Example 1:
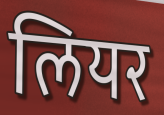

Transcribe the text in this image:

लियर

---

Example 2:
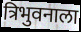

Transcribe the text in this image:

त्रिभुवनाला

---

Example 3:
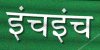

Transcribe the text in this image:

इंचइंच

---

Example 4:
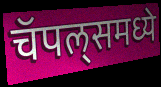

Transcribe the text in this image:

चॅपल्समध्ये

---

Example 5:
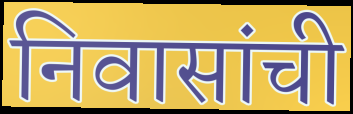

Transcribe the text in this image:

निवासांची